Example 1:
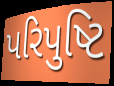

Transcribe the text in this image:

પરિપુષ્ટિ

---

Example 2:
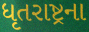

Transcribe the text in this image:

ધૃતરાષ્ટ્રના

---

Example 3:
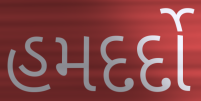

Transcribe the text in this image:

હમદર્દો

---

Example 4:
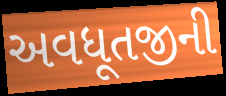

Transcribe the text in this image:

અવધૂતજીની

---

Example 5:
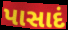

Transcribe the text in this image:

પાસાદં